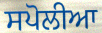
ਸਪੋਲੀਆ